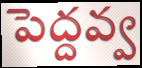
పెద్దవ్వ